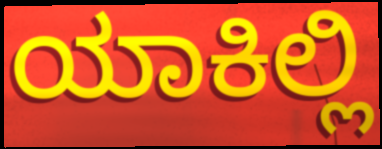
ಯಾಕಿಲ್ಲಿ